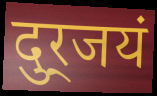
दुर्जयं